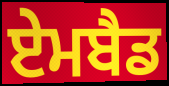
ਏਮਬੈਡ